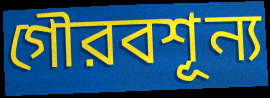
গৌরবশূন্য